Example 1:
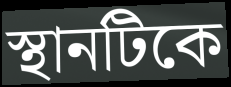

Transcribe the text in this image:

স্থানটিকে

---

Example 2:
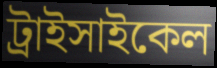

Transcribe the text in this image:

ট্রাইসাইকেল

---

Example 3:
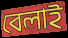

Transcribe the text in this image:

বেলাই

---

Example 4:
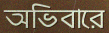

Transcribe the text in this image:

অভিবারে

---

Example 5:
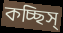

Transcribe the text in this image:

কচ্ছিস্